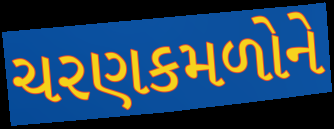
ચરણકમળોને